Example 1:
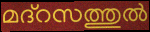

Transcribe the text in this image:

മദ്റസത്തുൽ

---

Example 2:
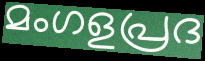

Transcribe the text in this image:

മംഗളപ്രദ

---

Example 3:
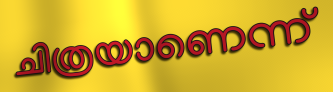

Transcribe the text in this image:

ചിത്രയാണെന്ന്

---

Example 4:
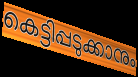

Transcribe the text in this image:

കെട്ടിപ്പടുക്കാനും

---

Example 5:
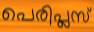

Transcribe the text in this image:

പെരിപ്ലസ്